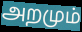
அறமும்